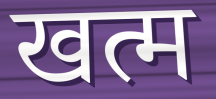
खत्म